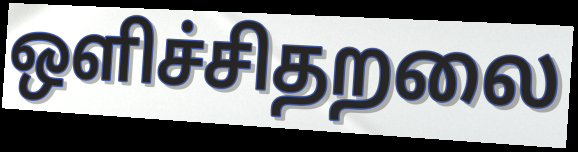
ஒளிச்சிதறலை